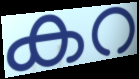
കറ